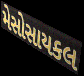
મેસોસાયકલ